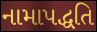
નામાપદ્ધતિ